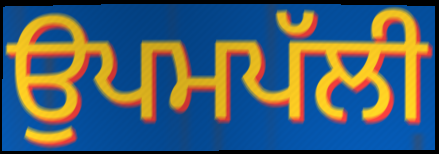
ਉਪਮਪੱਲੀ